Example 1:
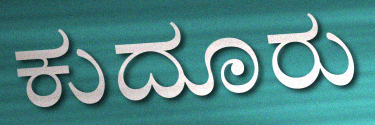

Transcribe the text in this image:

ಕುದೂರು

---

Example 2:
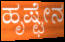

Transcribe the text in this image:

ಹೃಷ್ಟೇನ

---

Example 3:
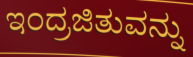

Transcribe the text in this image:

ಇಂದ್ರಜಿತುವನ್ನು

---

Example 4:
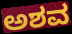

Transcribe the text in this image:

ಅಶವ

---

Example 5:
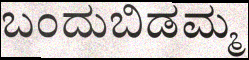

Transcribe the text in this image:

ಬಂದುಬಿಡಮ್ಮ